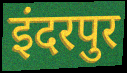
इंदरपुर